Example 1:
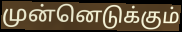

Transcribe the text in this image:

முன்னெடுக்கும்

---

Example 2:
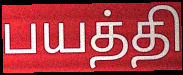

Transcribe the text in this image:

பயத்தி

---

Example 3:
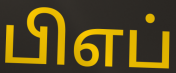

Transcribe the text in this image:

பிஎப்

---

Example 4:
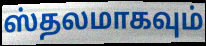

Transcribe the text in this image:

ஸ்தலமாகவும்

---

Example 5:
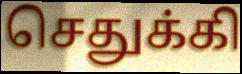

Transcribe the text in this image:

செதுக்கி